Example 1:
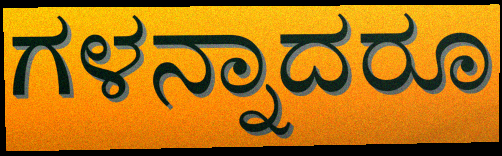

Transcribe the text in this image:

ಗಳನ್ನಾದರೂ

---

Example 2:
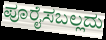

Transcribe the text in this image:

ಪೂರೈಸಬಲ್ಲದು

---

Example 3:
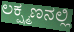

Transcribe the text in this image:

ಲಕ್ಷ್ಮಣನಲ್ಲಿ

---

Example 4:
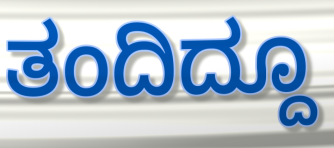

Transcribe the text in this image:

ತಂದಿದ್ದೂ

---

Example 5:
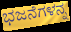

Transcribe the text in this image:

ಭಜನೆಗಳನ್ನ